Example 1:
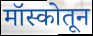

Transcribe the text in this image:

मॉस्कोतून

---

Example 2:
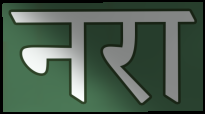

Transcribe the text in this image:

नरा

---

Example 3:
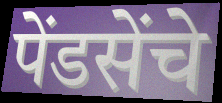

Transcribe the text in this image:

पेंडसेंचे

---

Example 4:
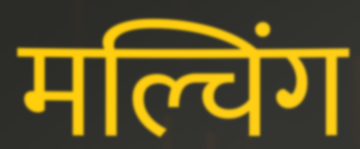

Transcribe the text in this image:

मल्चिंग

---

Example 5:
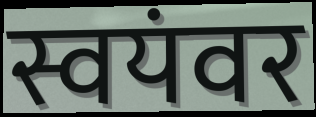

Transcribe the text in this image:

स्वयंवर